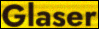
Glaser